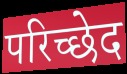
परिच्छेद